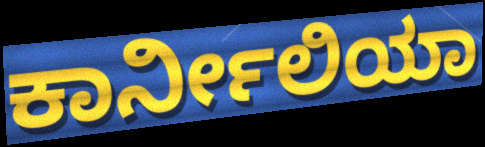
ಕಾರ್ನೀಲಿಯಾ